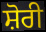
ਸ਼ੋਰੀ